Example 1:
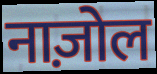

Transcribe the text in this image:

नाज़ोल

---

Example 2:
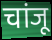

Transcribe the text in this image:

चांजू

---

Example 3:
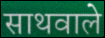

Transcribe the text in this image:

साथवाले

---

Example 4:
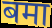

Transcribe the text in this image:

बमा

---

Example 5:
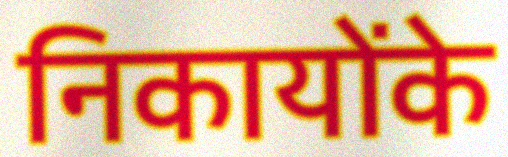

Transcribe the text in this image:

निकायोंके